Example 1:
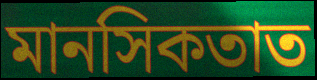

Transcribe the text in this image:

মানসিকতাত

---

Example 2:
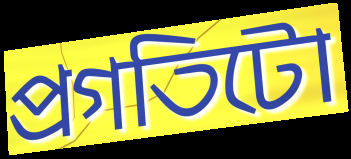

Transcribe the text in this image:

প্ৰগতিটো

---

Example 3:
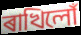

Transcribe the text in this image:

ৰাখিলোঁ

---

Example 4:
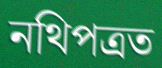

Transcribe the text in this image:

নথিপত্ৰত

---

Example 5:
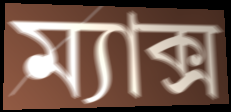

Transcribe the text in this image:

ম্যাক্স